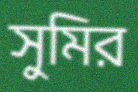
সুমির